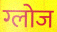
ग्लोज